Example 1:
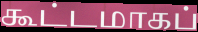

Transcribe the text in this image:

கூட்டமாகப்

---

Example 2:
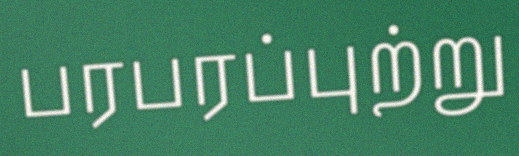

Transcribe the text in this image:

பரபரப்புற்று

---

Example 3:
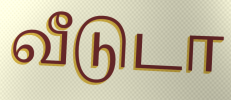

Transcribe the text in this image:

வீடுடா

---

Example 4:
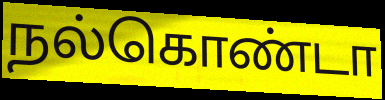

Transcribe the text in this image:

நல்கொண்டா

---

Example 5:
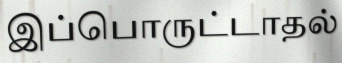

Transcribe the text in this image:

இப்பொருட்டாதல்